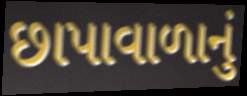
છાપાવાળાનું